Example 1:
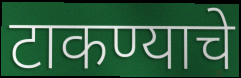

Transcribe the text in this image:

टाकण्याचे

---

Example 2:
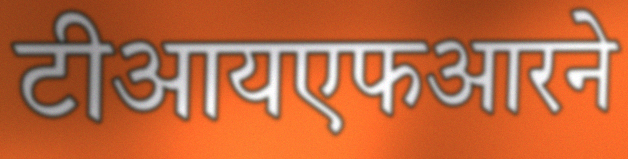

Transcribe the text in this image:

टीआयएफआरने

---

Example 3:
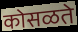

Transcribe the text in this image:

कोसळते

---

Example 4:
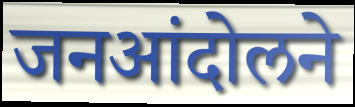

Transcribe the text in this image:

जनआंदोलने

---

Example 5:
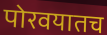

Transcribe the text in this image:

पोरवयातच